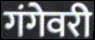
गंगेवरी